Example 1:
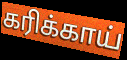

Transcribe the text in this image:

கரிக்காய்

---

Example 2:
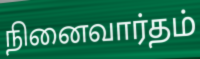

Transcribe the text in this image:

நினைவார்தம்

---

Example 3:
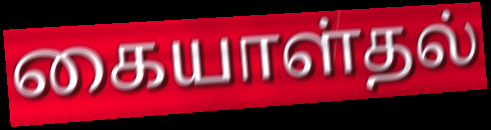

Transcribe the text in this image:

கையாள்தல்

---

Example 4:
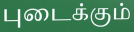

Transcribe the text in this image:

புடைக்கும்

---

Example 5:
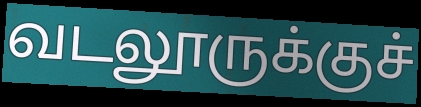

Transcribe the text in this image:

வடலூருக்குச்